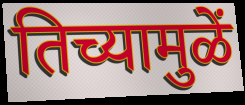
तिच्यामुळें